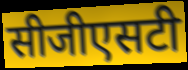
सीजीएसटी